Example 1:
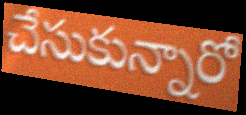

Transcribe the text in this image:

చేసుకున్నారో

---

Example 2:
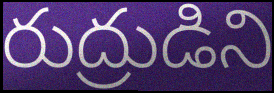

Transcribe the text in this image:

రుద్రుడిని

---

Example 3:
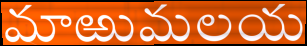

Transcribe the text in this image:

మాఱుమలయ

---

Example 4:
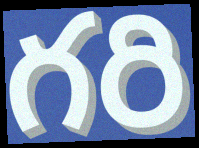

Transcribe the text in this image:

గరి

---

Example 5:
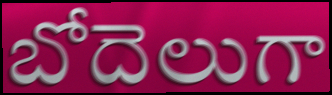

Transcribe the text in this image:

బోదెలుగా